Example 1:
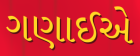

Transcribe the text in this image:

ગણાઈએ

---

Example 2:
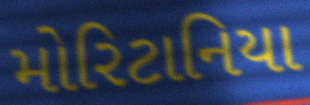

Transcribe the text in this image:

મોરિટાનિયા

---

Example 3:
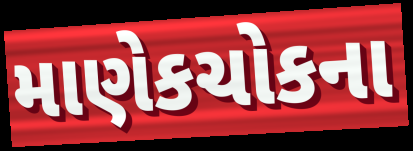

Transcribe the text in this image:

માણેકચોકના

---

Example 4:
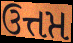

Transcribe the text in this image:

ઉત્તપ્ત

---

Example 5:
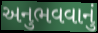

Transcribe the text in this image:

અનુભવવાનું